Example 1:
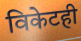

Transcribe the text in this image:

विकेटही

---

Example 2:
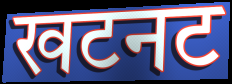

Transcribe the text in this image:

खटनट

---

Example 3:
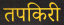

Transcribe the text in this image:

तपकिरी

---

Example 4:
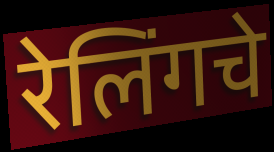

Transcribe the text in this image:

रेलिंगचे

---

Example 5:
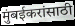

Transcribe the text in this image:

मुंबईकरांसाठी